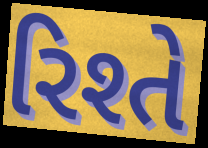
રિશ્તે